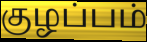
குழப்பம்